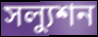
সল্যুশন